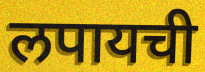
लपायची